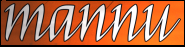
mannu